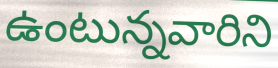
ఉంటున్నవారిని